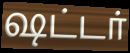
ஷட்டர்